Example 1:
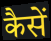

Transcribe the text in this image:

कैसें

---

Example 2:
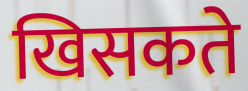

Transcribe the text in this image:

खिसकते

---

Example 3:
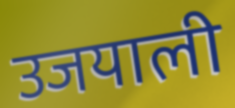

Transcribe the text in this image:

उजयाली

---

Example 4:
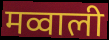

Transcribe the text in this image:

मव्वाली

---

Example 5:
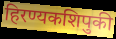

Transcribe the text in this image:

हिरण्यकशिपुकी